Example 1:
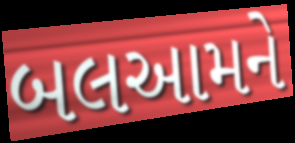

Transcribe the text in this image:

બલઆમને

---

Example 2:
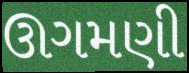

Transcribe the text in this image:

ઊગમણી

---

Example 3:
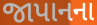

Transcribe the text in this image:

જાપાનના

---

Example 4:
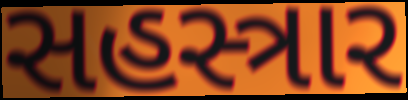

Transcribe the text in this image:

સહસ્ત્રાર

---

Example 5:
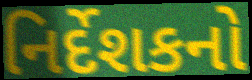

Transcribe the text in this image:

નિર્દેશકનો